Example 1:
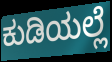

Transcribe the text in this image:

ಕುಡಿಯಲ್ಲೆ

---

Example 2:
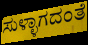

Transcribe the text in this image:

ಸುಳ್ಳಾಗದಂತೆ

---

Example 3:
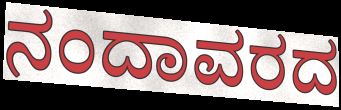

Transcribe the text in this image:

ನಂದಾವರದ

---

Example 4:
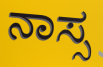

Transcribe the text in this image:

ನಾಸ್ಸ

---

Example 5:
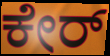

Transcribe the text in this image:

ಕೇರ್